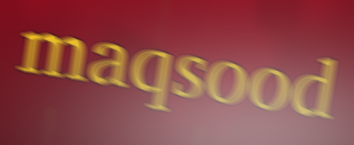
maqsood